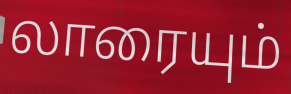
லாரையும்